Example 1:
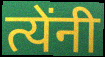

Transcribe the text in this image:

त्येंनी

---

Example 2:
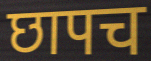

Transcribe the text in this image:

छापच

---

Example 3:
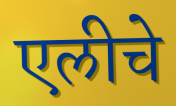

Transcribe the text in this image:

एलीचे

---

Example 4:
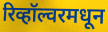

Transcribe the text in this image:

रिव्हॉल्वरमधून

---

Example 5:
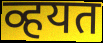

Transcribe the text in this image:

व्हयत